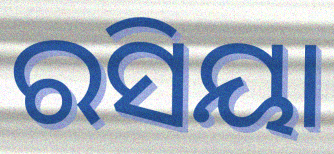
ରସିୟା